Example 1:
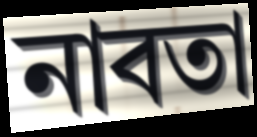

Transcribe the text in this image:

নাবতা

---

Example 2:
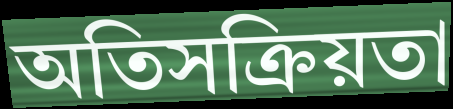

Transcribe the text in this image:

অতিসক্রিয়তা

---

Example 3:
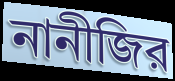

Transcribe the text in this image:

নানীজির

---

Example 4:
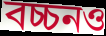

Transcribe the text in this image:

বচ্চনও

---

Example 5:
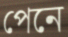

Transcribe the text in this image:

পেনে